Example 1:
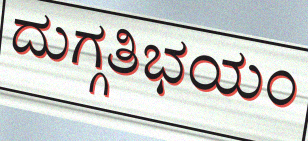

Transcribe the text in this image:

ದುಗ್ಗತಿಭಯಂ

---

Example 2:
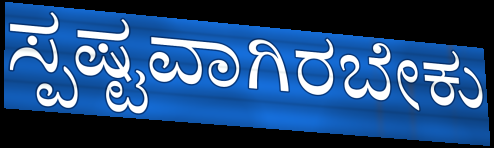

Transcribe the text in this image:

ಸ್ಪಷ್ಟವಾಗಿರಬೇಕು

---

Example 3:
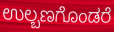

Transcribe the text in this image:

ಉಲ್ಬಣಗೊಂಡರೆ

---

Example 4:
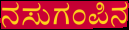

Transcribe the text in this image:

ನಸುಗಂಪಿನ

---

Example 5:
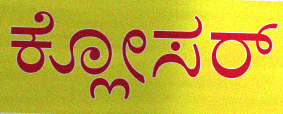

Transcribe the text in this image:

ಕ್ಲೋಸರ್